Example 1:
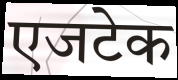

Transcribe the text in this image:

एजटेक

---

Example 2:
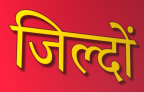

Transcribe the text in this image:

जिल्दों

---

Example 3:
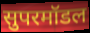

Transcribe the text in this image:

सुपरमॉडल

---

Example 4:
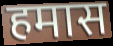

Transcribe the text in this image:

हमास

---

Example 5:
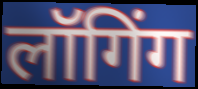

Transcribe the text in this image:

लॉगिंग